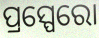
ପ୍ରସ୍ପେରୋ